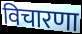
विचारणा